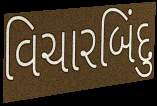
વિચારબિંદુ